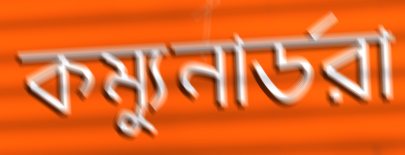
কম্যুনার্ডরা